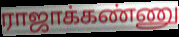
ராஜாக்கண்ணு